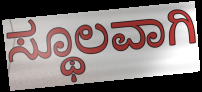
ಸ್ಥೂಲವಾಗಿ